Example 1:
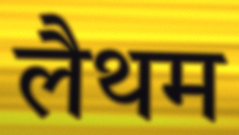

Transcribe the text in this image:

लैथम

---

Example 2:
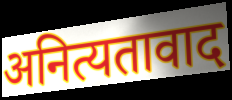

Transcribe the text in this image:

अनित्यतावाद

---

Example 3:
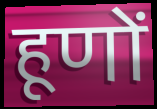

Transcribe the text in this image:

हूणों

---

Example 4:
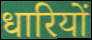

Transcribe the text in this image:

धारियों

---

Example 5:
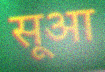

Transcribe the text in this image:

सूआ